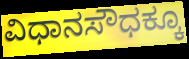
ವಿಧಾನಸೌಧಕ್ಕೂ